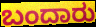
ಬಂದಾರು